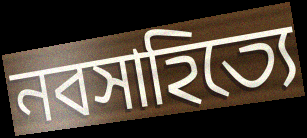
নবসাহিত্যে